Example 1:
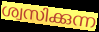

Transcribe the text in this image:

ശ്വസിക്കുന്ന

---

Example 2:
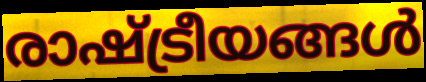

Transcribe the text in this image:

രാഷ്ട്രീയങ്ങൾ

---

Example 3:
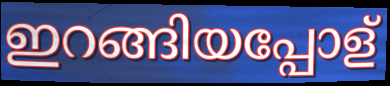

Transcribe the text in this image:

ഇറങ്ങിയപ്പോള്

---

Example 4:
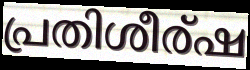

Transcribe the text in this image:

പ്രതിശീര്ഷ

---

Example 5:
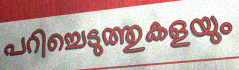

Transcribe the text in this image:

പറിച്ചെടുത്തുകളയും